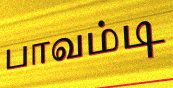
பாவம்டி